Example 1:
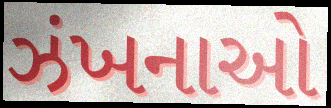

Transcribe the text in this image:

ઝંખનાઓ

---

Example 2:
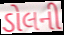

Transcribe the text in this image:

ડોલની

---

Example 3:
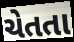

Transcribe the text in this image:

ચેતતા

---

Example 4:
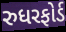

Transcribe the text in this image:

રુધરફોર્ડ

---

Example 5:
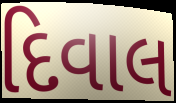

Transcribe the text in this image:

દિવાલ